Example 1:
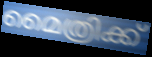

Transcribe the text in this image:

മൈത്രിക്ക്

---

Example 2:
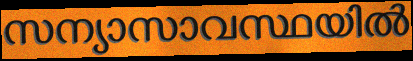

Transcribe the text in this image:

സന്യാസാവസ്ഥയിൽ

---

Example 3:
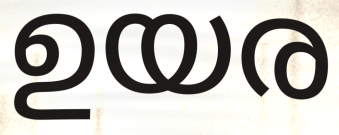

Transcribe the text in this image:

ഉയര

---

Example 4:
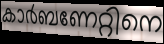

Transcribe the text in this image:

കാർബണേറ്റിനെ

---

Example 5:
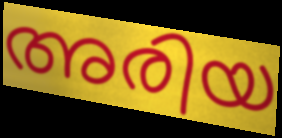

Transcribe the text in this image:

അരിയ